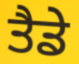
ਤੈਡੇ